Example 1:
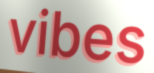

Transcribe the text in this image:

vibes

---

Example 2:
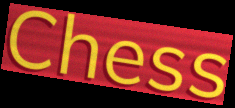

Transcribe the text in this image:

Chess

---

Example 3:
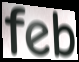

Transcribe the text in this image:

feb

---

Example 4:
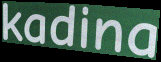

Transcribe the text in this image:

kadina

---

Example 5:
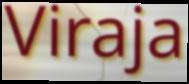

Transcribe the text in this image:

Viraja